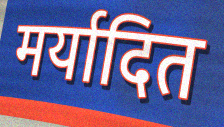
मर्यादित